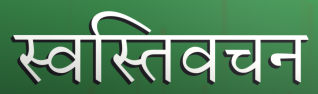
स्वस्तिवचन